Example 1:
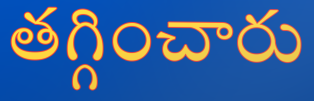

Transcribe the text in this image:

తగ్గించారు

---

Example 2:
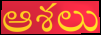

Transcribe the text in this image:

ఆశలు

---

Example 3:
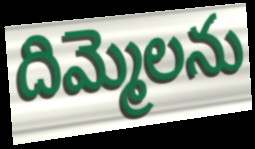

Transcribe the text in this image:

దిమ్మెలను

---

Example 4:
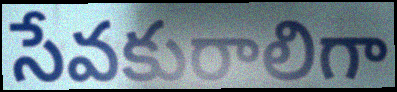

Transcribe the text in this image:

సేవకురాలిగా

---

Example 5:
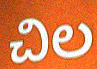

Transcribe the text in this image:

చిల